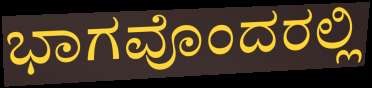
ಭಾಗವೊಂದರಲ್ಲಿ